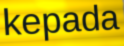
kepada